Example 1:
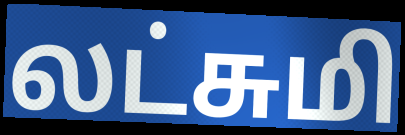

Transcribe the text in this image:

லட்சுமி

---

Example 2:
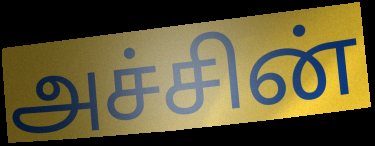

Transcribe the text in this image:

அச்சின்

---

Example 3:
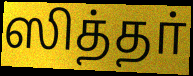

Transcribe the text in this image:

ஸித்தர்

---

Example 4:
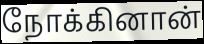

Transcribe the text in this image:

நோக்கினான்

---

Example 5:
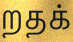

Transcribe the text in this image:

றதக்